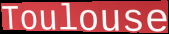
Toulouse